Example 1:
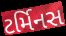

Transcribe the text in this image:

ટર્મિનસ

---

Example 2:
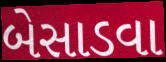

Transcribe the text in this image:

બેસાડવા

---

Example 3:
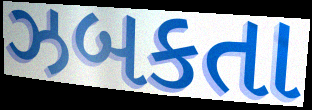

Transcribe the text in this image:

ઝબકતા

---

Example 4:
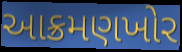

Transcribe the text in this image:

આક્રમણખોર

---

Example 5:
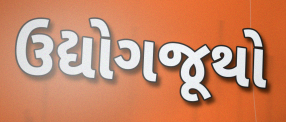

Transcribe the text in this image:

ઉદ્યોગજૂથો